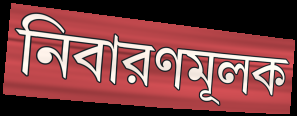
নিবারণমূলক